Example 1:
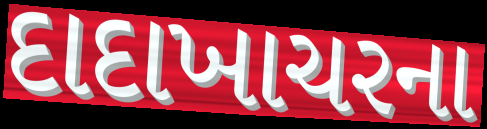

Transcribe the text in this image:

દાદાખાચરના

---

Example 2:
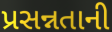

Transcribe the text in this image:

પ્રસન્નતાની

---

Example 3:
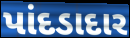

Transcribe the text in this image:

પાંદડાદાર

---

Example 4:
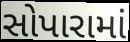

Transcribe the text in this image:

સોપારામાં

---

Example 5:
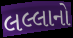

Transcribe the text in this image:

લલ્લાનો